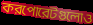
করপোরেটগুলোও